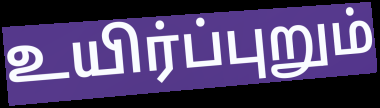
உயிர்ப்புறும்